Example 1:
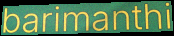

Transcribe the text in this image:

barimanthi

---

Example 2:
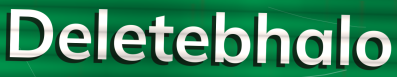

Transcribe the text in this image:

Deletebhalo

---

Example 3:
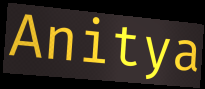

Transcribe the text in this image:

Anitya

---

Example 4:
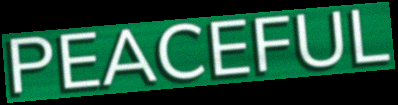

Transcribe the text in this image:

PEACEFUL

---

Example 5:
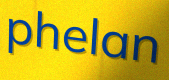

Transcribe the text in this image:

phelan